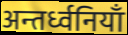
अन्तर्ध्वनियाँ